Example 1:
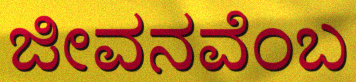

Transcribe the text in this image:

ಜೀವನವೆಂಬ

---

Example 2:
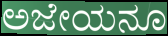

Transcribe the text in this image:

ಅಜೇಯನೂ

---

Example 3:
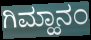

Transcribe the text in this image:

ಗಿಮ್ಹಾನಂ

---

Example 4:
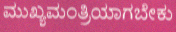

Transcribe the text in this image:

ಮುಖ್ಯಮಂತ್ರಿಯಾಗಬೇಕು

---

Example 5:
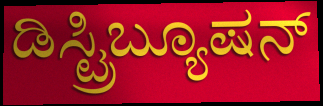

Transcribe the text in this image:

ಡಿಸ್ಟ್ರಿಬ್ಯೂಷನ್